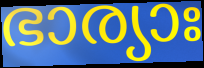
ഭാര്യാഃ